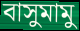
বাসুমামু